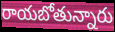
రాయబోతున్నారు